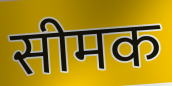
सीमक